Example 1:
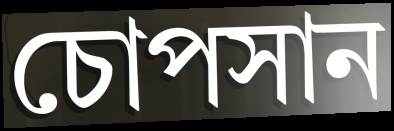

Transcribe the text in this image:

চোপসান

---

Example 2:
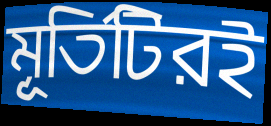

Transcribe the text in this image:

মূর্তিটিরই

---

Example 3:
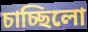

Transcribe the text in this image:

চাচ্ছিলো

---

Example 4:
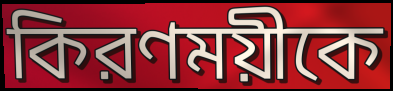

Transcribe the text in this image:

কিরণময়ীকে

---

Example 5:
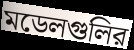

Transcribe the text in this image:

মডেলগুলির